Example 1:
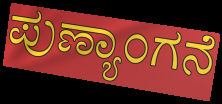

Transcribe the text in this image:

ಪುಣ್ಯಾಂಗನೆ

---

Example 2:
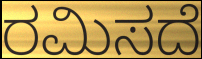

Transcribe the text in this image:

ರಮಿಸದೆ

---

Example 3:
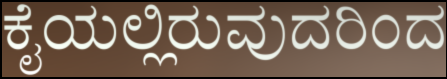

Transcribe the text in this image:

ಕೈಯಲ್ಲಿರುವುದರಿಂದ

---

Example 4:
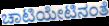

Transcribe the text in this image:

ಚಾಟಿಯೇಟಿನಂತೆ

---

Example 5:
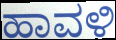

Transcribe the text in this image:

ಹಾವಳಿ